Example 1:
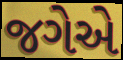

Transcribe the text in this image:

જગેએ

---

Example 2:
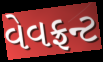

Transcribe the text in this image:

વેવફ્રન્ટ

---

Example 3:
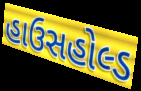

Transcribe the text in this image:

હાઉસહોલ્ડ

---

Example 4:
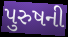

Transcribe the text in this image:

પુરુષની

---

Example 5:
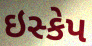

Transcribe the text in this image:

ઇસ્કેપ